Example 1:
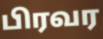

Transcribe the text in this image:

பிரவர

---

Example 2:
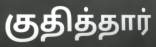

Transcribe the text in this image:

குதித்தார்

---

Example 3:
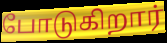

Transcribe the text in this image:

போடுகிறார்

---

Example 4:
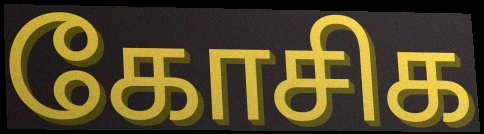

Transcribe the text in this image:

கோசிக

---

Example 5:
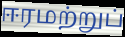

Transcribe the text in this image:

ஈரமற்றுப்